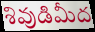
శివుడిమీద